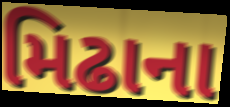
મિઢાના